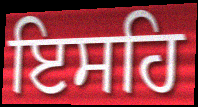
ਇਸਹਿ